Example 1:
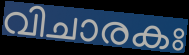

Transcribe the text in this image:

വിചാരകഃ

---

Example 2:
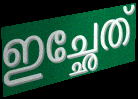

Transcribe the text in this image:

ഇച്ഛേത്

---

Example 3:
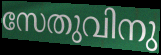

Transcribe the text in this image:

സേതുവിനു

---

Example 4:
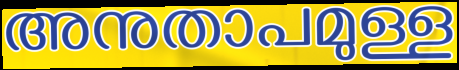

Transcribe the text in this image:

അനുതാപമുള്ള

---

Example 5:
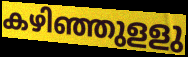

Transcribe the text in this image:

കഴിഞ്ഞുളളു